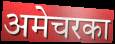
अमेचरका